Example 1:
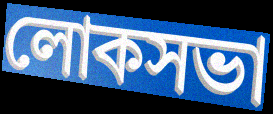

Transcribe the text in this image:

লোকসভা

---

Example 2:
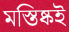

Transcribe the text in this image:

মস্তিষ্কই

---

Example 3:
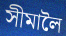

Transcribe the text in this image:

সীমালৈ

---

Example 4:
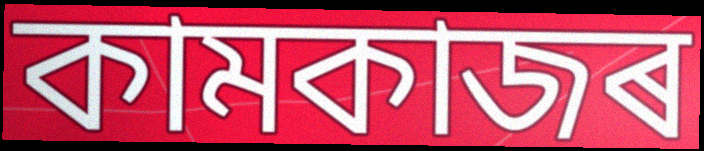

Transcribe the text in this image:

কামকাজৰ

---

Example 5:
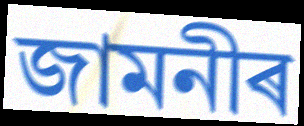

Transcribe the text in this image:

জামনীৰ